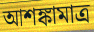
আশঙ্কামাত্র